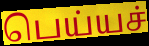
பெய்யச்